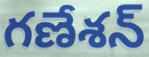
గణేశన్